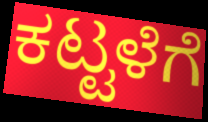
ಕಟ್ಟಳೆಗೆ